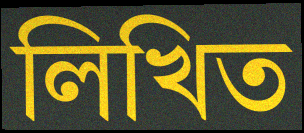
লিখিত